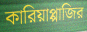
কারিয়াপ্পাজির